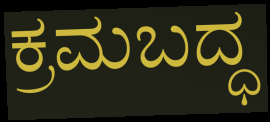
ಕ್ರಮಬದ್ಧ